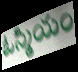
ఓస్మియం